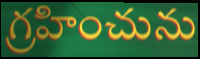
గ్రహించును